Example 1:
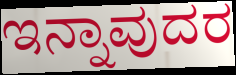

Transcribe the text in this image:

ಇನ್ನಾವುದರ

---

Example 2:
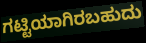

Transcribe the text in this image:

ಗಟ್ಟಿಯಾಗಿರಬಹುದು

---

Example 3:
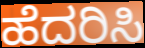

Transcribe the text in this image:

ಹೆದರಿಸಿ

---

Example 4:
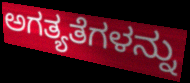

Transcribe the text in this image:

ಅಗತ್ಯತೆಗಳನ್ನು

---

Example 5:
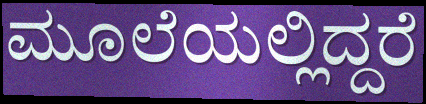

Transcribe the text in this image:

ಮೂಲೆಯಲ್ಲಿದ್ದರೆ